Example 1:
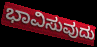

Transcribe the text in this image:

ಭಾವಿಸುವುದು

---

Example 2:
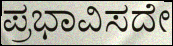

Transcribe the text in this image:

ಪ್ರಭಾವಿಸದೇ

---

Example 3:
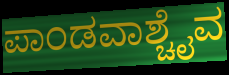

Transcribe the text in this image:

ಪಾಂಡವಾಶ್ಚೈವ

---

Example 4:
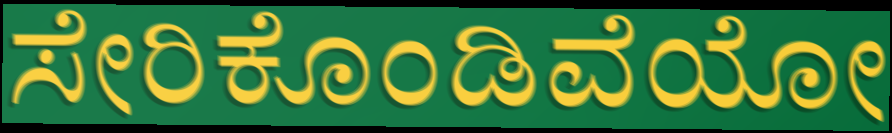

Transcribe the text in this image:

ಸೇರಿಕೊಂಡಿವೆಯೋ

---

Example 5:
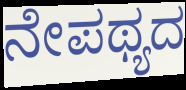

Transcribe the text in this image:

ನೇಪಥ್ಯದ